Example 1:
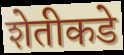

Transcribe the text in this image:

शेतीकडे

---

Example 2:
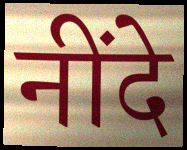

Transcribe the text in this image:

नींदे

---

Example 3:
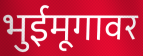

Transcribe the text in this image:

भुईमूगावर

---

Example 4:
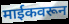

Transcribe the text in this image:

माईकवरून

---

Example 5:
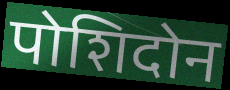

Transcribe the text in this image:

पोशिदोन